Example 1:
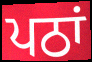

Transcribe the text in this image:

ਪਠਾਂ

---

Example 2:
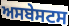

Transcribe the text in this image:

ਅਸਬੇਸਟਸ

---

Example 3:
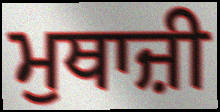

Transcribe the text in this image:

ਮੁਥਾਜ਼ੀ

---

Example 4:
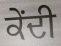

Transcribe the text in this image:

ਕੇਂਦੀ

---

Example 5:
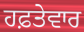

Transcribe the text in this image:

ਹਫ਼ਤੇਵਾਰ